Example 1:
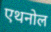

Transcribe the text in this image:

एथनोल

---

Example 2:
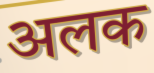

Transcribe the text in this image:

अलक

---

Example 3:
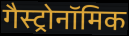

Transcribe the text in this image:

गैस्ट्रोनॉमिक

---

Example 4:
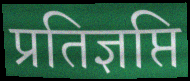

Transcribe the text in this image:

प्रतिज्ञप्ति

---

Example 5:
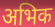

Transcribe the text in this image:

अभिक